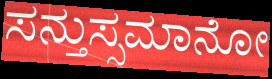
ಸನ್ತುಸ್ಸಮಾನೋ